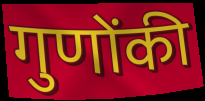
गुणोंकी